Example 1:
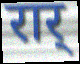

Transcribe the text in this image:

रार्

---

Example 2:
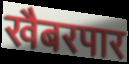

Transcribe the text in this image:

खैबरपार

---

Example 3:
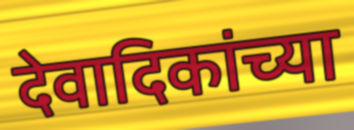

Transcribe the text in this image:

देवादिकांच्या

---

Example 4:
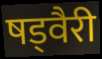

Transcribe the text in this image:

षड्वैरी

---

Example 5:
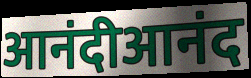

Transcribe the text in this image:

आनंदीआनंद